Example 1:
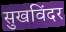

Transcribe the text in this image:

सुखविंदर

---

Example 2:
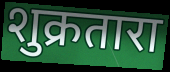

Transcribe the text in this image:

शुक्रतारा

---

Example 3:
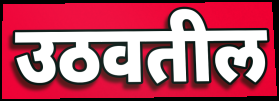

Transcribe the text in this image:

उठवतील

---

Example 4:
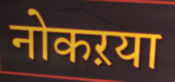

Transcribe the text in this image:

नोकऱया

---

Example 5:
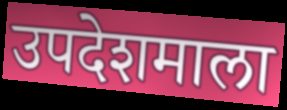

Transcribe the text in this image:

उपदेशमाला